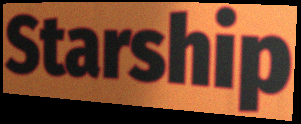
Starship